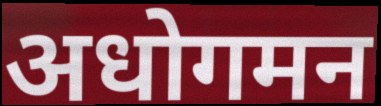
अधोगमन